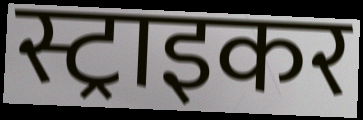
स्ट्राइकर